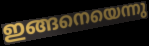
ഇങ്ങനെയെന്നു